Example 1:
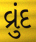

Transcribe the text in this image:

વ્રુંદ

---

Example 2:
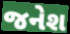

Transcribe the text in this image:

જનેશ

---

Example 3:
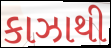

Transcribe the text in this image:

કાઝાથી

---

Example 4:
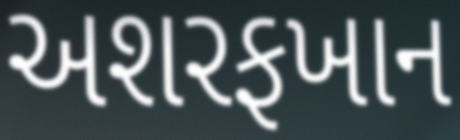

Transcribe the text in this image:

અશરફખાન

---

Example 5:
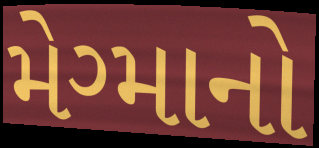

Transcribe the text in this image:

મેગ્માનો